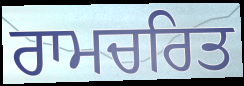
ਰਾਮਚਰਿਤ